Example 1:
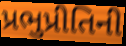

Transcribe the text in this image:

પ્રભુપ્રીતિની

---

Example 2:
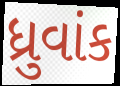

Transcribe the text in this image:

ધ્રુવાંક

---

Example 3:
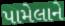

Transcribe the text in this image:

પામેલાને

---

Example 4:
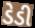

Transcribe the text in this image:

ડેડી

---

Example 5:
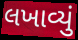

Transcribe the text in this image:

લખાવ્યું